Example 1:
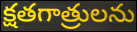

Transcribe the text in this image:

క్షతగాత్రులను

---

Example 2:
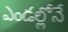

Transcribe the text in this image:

ఎండల్లోనే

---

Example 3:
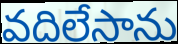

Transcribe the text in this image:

వదిలేసాను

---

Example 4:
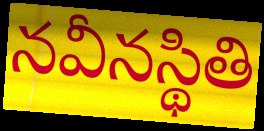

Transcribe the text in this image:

నవీనస్థితి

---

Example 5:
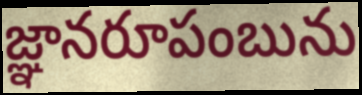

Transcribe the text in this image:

జ్ఞానరూపంబును